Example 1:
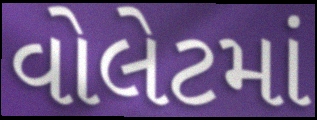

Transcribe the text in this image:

વોલેટમાં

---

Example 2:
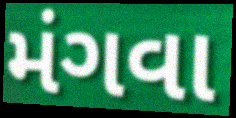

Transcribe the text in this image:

મંગવા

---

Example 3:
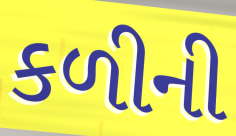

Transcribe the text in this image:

કળીની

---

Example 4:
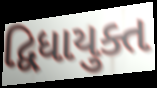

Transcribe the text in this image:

દ્વિધાયુક્ત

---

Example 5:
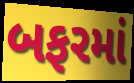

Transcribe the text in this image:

બફરમાં